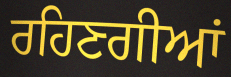
ਰਹਿਣਗੀਆਂ